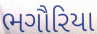
ભગૌરિયા